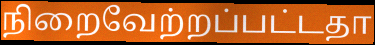
நிறைவேற்றப்பட்டதா